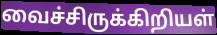
வைச்சிருக்கிறியள்